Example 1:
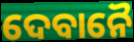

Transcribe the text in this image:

ଦେବାନୈ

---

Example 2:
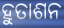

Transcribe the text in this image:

ହୁତାଶନ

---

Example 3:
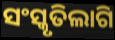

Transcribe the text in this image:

ସଂସ୍କୃତିଲାଗି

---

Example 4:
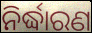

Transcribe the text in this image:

ନିର୍ଦ୍ଧାରଣ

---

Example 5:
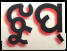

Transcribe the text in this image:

ଝୁପ୍